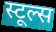
स्टूल्स